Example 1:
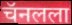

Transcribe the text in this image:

चॅनलला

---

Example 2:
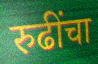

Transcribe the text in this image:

रुढींचा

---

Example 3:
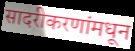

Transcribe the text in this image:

सादरीकरणांमधून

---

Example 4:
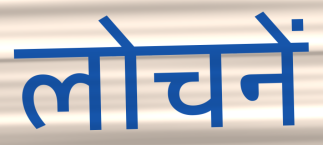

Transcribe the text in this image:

लोचनें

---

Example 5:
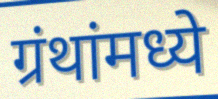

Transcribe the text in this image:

ग्रंथांमध्ये